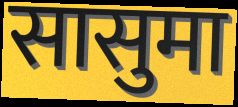
सासुमा